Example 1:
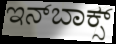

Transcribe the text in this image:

ಇನ್‍ಬಾಕ್ಸ್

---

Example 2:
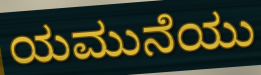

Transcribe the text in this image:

ಯಮುನೆಯು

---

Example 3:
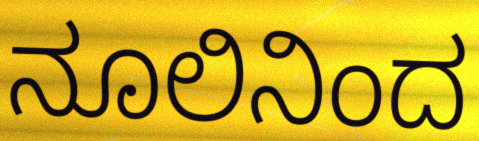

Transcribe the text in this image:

ನೂಲಿನಿಂದ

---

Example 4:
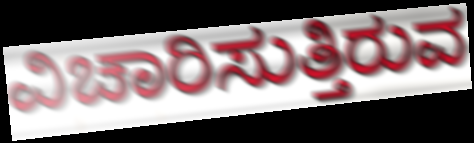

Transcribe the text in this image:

ವಿಚಾರಿಸುತ್ತಿರುವ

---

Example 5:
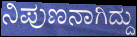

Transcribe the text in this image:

ನಿಪುಣನಾಗಿದ್ದು